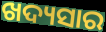
ଖଦ୍ୟସାର